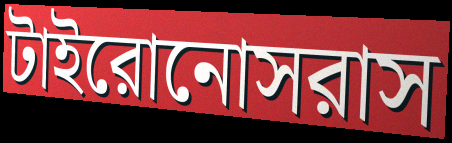
টাইরোনোসরাস